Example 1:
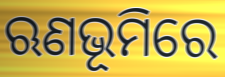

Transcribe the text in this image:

ଋଣଭୂମିରେ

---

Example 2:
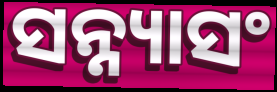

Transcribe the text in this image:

ସନ୍ନ୍ୟାସଂ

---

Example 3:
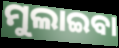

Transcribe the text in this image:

ମୁଲାଇବା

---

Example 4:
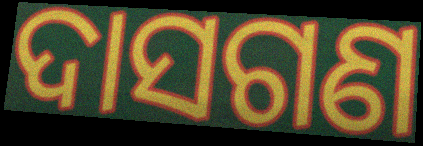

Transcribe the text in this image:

ଦାସଗଣ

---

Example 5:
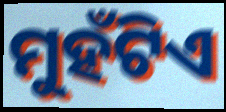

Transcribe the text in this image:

ମୁହଁଟିଏ